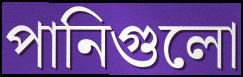
পানিগুলো